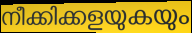
നീക്കിക്കളയുകയും